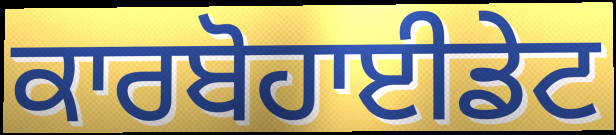
ਕਾਰਬੋਹਾਈਡੇਟ